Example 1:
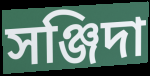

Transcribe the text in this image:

সঞ্জিদা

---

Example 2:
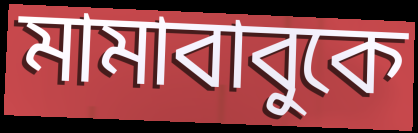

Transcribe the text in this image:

মামাবাবুকে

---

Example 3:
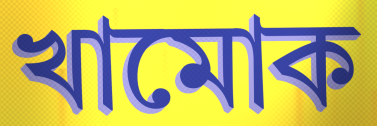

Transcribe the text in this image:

খামোক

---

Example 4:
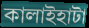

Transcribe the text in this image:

কালাইহাটা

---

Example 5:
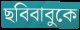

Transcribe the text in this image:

ছবিবাবুকে